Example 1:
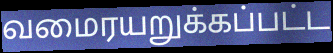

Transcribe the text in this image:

வமைரயறுக்கப்பட்ட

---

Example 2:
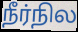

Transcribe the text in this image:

நீர்நில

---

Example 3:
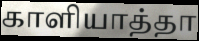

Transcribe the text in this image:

காளியாத்தா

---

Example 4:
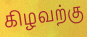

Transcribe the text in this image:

கிழவற்கு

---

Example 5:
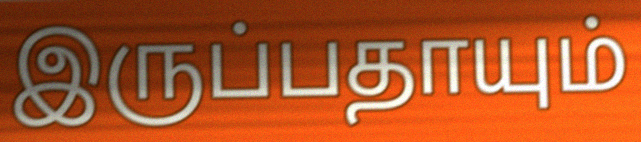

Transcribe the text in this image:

இருப்பதாயும்